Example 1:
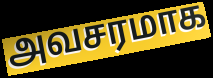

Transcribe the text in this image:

அவசரமாக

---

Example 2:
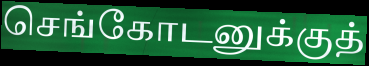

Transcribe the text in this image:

செங்கோடனுக்குத்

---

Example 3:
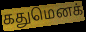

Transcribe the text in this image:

கதுமெனக்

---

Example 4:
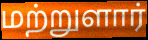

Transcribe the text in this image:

மற்றுளார்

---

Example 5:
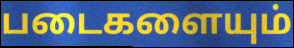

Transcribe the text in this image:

படைகளையும்